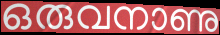
ഒരുവനാണു